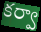
కర్వా